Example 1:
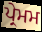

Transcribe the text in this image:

ਪ੍ਰੇਮਮ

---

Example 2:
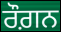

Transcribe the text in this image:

ਰੌਗ਼ਨ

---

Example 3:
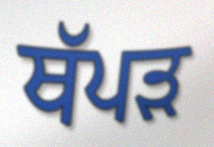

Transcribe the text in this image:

ਥੱਪੜ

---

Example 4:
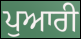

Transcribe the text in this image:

ਪੁਆਰੀ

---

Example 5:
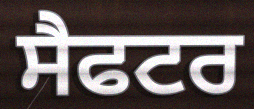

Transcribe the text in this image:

ਸੈਫਟਰ